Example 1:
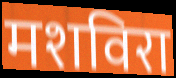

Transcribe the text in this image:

मशविरा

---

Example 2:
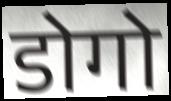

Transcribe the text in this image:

डोगो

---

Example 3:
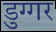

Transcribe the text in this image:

डुग्गर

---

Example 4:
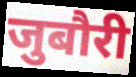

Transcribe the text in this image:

जुबौरी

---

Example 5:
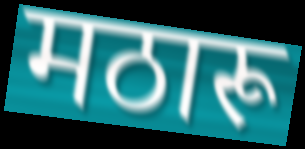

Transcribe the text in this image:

मठारू